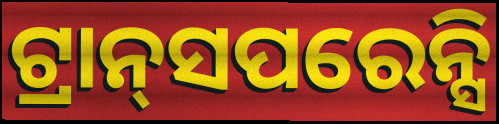
ଟ୍ରାନ୍‌ସପରେନ୍ସି